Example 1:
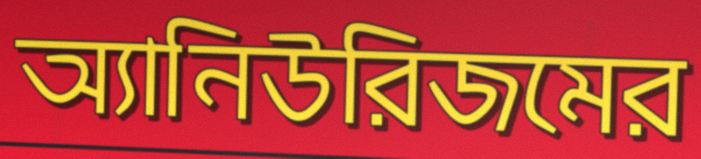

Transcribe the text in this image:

অ্যানিউরিজমের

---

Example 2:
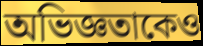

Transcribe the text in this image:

অভিজ্ঞতাকেও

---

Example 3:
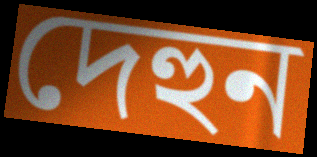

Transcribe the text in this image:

দেহুন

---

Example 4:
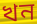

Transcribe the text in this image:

খন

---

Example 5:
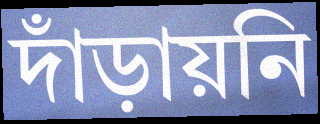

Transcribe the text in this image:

দাঁড়ায়নি